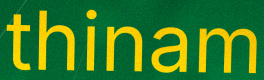
thinam